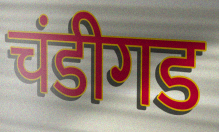
चंडीगड